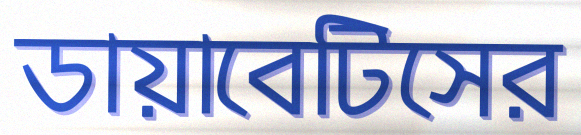
ডায়াবেটিসের